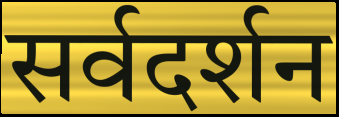
सर्वदर्शन